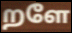
றளே